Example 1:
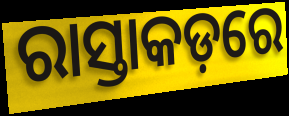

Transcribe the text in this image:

ରାସ୍ତାକଡ଼ରେ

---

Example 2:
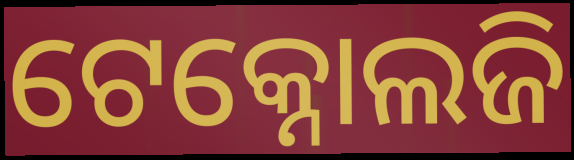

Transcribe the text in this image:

ଟେକ୍ନୋଲଜି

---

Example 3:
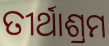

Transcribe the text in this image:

ତୀର୍ଥାଶ୍ରମ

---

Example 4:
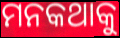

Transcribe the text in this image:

ମନକଥାକୁ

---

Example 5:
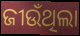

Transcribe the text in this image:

ଜୀଉଁଥିଲା